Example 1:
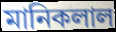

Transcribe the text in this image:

মানিকলাল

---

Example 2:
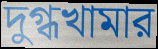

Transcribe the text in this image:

দুগ্ধখামার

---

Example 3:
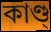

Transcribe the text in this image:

কাণ্ড্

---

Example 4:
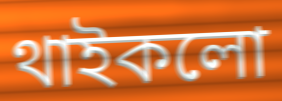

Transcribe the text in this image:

থাইকলো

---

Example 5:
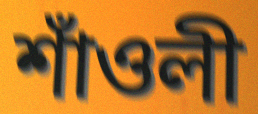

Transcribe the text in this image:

শাঁওলী